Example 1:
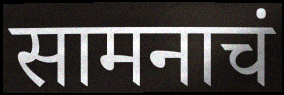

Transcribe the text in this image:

सामनाचं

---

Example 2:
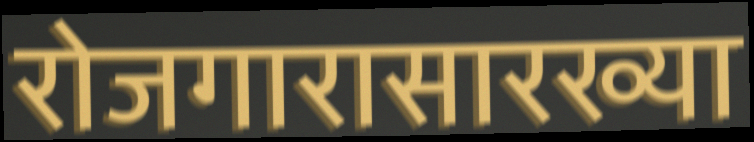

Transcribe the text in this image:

रोजगारासारख्या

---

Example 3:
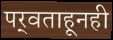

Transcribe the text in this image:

पर्वताहूनही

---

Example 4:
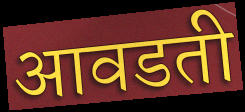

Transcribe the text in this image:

आवडती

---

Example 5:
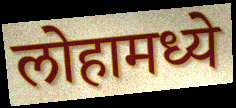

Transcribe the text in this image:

लोहामध्ये